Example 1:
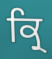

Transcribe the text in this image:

ਕ੍ਰਿ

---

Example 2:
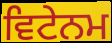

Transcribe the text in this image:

ਵਿਟੇਨਮ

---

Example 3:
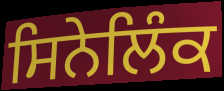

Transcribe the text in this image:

ਸਿਨੇਲਿੰਕ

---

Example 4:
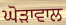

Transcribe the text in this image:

ਘੋੜਾਵਾਲ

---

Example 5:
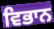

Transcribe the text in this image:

ਵਿਭਾਨ